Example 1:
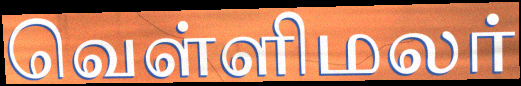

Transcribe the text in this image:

வெள்ளிமலர்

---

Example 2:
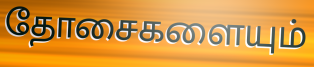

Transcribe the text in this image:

தோசைகளையும்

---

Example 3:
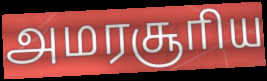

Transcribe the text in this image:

அமரசூரிய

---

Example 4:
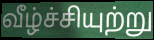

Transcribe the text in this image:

வீழ்ச்சியுற்று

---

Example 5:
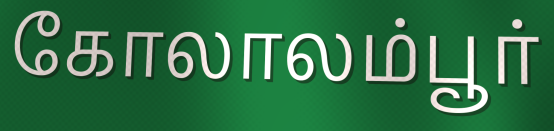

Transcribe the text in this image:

கோலாலம்பூர்